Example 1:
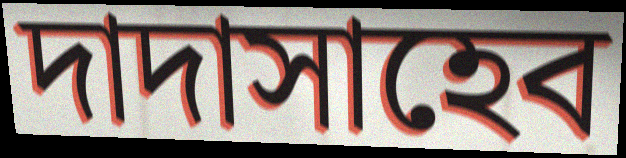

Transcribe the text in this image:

দাদাসাহেব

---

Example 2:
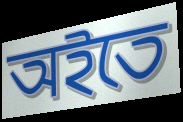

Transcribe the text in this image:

অইতে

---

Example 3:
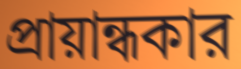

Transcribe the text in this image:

প্রায়ান্ধকার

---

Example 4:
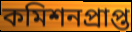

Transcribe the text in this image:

কমিশনপ্রাপ্ত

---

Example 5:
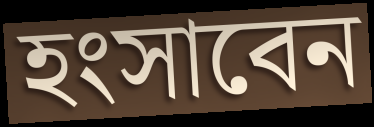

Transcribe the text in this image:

হংসাবেন